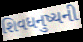
શિવધનુષ્યની